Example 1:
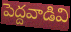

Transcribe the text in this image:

పెద్దవాడివి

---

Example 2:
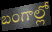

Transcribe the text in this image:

బంగాల్లో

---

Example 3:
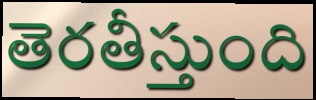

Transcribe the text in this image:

తెరతీస్తుంది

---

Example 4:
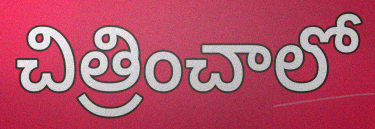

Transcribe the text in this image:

చిత్రించాలో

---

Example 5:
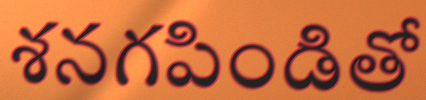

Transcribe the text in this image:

శనగపిండితో